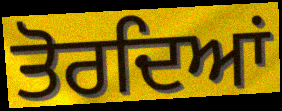
ਤੋਰਦਿਆਂ